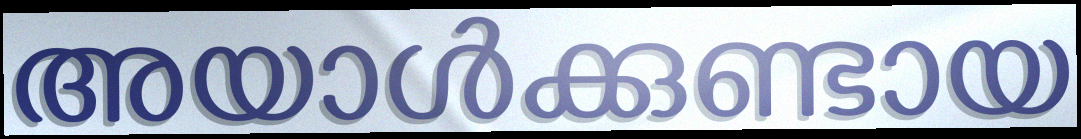
അയാൾക്കുണ്ടായ